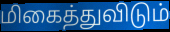
மிகைத்துவிடும்